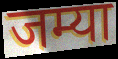
जम्या